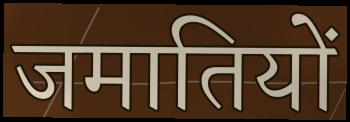
जमातियों